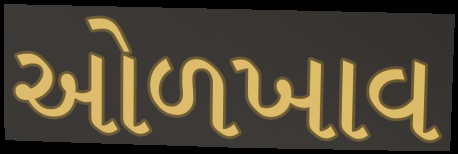
ઓળખાવ